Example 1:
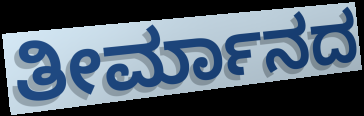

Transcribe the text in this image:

ತೀರ್ಮಾನದ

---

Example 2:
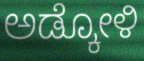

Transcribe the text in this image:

ಅಡ್ಕೋಳಿ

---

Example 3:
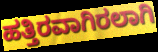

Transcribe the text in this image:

ಹತ್ತಿರವಾಗಿರಲಾಗಿ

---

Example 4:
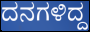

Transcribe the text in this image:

ದನಗಳಿದ್ದ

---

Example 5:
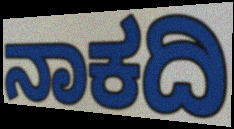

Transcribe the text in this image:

ನಾಕದಿ